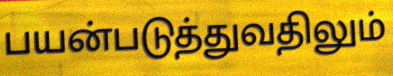
பயன்படுத்துவதிலும்